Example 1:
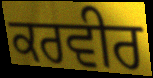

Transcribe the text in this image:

ਕਰਵੀਰ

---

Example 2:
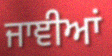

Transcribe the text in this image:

ਜਾਞੀਆਂ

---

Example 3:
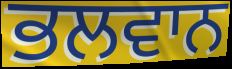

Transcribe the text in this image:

ਭਲਵਾਨ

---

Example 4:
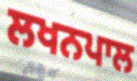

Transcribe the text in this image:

ਲਖਨਪਾਲ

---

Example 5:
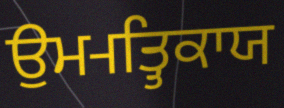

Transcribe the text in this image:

ਉਮ੍ਮਤ੍ਤਿਕਾਯ